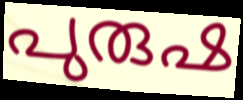
പുരുഷ